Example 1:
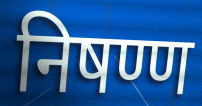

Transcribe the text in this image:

निषण्ण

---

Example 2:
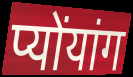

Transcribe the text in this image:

प्योंयांग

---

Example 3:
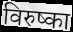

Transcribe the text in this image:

विरुष्का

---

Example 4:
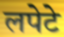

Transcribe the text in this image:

लपेटे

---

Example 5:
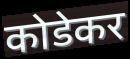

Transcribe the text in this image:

कोडेकर